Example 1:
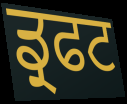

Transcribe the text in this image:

ਡ੍ਰਫਟ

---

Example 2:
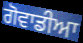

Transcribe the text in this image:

ਗੋਵਾਡੀਆ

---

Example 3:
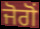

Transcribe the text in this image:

ਜੋਗੋਂ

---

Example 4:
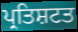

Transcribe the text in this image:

ਪ੍ਰਤਿਸ਼ਟਤ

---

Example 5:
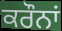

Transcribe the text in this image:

ਕਰੌਨਾਂ